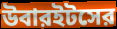
উবারইটসের